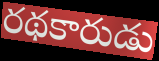
రథకారుడు